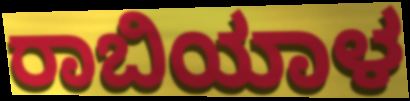
ರಾಬಿಯಾಳ